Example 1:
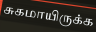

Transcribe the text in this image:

சுகமாயிருக்க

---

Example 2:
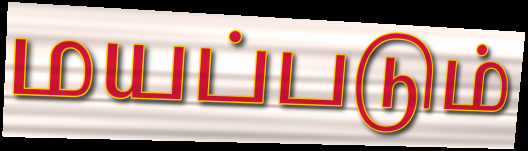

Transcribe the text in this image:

மயப்படும்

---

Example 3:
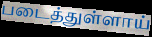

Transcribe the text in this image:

படைத்துள்ளாய்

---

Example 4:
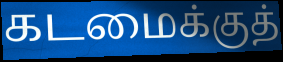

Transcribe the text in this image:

கடமைக்குத்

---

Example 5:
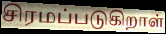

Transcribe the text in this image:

சிரமப்படுகிறாள்